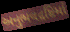
અનુભવદ્રષ્ટિમાં